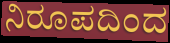
ನಿರೂಪದಿಂದ